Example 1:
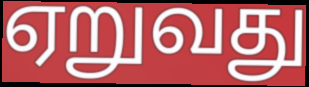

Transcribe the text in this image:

ஏறுவது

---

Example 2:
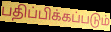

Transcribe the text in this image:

பதிப்பிக்கப்படும்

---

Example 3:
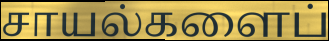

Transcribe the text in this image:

சாயல்களைப்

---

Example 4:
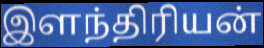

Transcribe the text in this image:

இளந்திரியன்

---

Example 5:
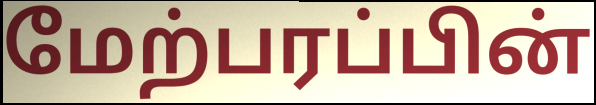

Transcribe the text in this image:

மேற்பரப்பின்